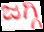
ಜಗ್ಗಿ